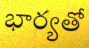
భార్యతో